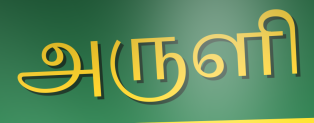
அருளி